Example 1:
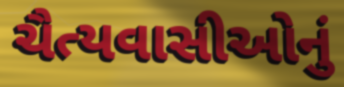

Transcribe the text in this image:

ચૈત્યવાસીઓનું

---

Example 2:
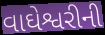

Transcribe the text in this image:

વાઘેશ્વરીની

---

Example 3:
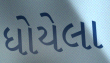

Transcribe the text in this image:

ધોયેલા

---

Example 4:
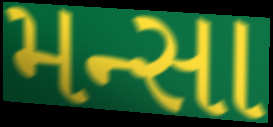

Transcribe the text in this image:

મન્સા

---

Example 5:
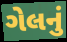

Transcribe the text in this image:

ગેલનું